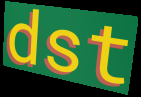
dst